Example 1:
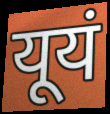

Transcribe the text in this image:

यूयं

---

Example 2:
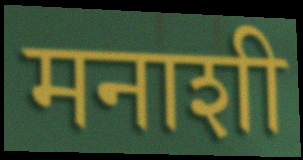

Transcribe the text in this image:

मनाशी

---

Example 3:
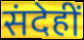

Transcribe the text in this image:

संदेहीं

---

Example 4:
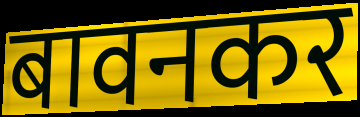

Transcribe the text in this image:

बावनकर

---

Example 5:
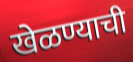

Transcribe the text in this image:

खेळण्याची